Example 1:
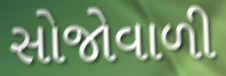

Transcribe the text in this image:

સોજોવાળી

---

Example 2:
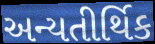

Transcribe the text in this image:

અન્યતીર્થિક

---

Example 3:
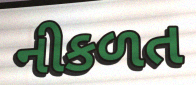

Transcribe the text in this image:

નીકળત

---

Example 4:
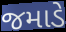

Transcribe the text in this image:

જમાડે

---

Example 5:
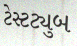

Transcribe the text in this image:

ટેસ્ટટ્યુબ